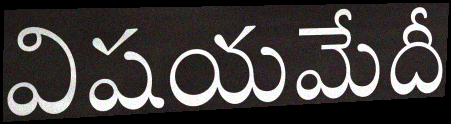
విషయమేదీ